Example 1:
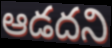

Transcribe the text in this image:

ఆడదని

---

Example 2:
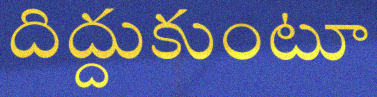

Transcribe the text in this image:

దిద్దుకుంటూ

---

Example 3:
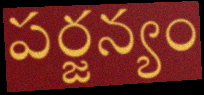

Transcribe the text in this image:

పర్జన్యం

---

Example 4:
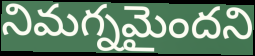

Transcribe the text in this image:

నిమగ్నమైందని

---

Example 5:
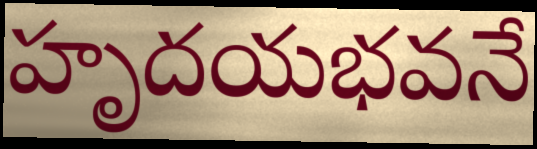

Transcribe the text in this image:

హృదయభవనే